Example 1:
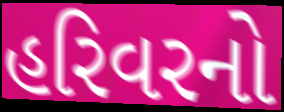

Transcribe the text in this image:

હરિવરનો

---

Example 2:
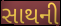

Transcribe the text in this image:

સાથની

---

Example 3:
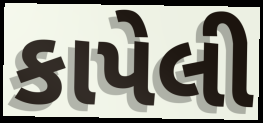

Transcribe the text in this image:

કાપેલી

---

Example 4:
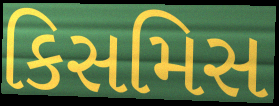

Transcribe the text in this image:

કિસમિસ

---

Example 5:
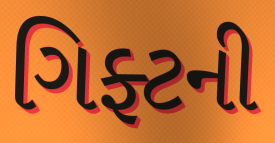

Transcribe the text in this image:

ગિફ્ટની